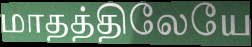
மாதத்திலேயே